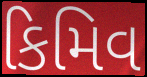
કિમિવ